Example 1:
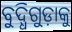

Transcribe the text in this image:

ବୁଦ୍ଧିଗୁଡ଼ାକୁ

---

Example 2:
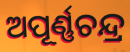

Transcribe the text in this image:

ଅପୂର୍ଣ୍ଣଚନ୍ଦ୍ର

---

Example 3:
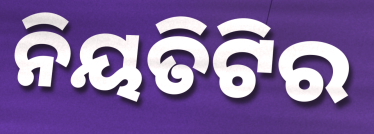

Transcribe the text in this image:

ନିୟତିଟିର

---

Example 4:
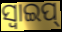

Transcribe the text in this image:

ସ୍ୱାଇପ୍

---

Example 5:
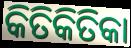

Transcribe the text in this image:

କିତିକିତିକା